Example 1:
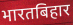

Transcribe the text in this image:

भारतबिहार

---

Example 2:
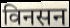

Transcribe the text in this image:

विनसन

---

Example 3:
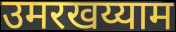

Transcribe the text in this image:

उमरखय्याम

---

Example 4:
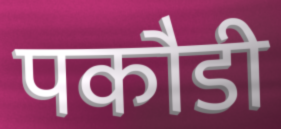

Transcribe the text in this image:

पकौडी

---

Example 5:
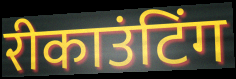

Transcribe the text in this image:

रीकाउंटिंग